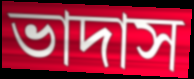
ভাদাস